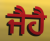
ਜੈਹੈ